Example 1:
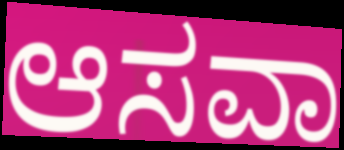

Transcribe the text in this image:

ಆಸವಾ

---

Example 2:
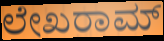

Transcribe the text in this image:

ಲೇಖರಾಮ್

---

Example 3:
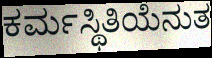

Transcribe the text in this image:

ಕರ್ಮಸ್ಥಿತಿಯೆನುತ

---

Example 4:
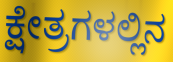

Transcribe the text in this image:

ಕ್ಷೇತ್ರಗಳಲ್ಲಿನ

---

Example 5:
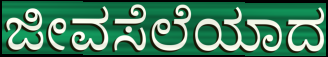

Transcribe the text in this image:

ಜೀವಸೆಲೆಯಾದ